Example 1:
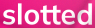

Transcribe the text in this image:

slotted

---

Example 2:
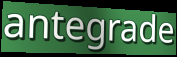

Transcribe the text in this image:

antegrade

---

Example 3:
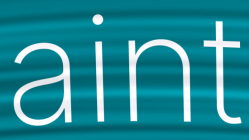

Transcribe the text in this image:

aint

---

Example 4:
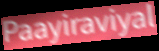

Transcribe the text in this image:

Paayiraviyal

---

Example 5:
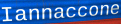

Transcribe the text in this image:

Iannaccone